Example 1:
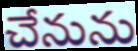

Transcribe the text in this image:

చేనును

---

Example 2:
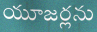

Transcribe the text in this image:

యూజర్లను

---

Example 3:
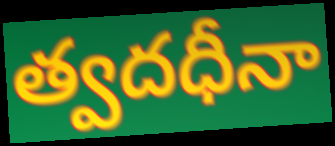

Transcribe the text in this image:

త్వదధీనా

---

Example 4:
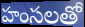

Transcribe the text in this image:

హంసలతో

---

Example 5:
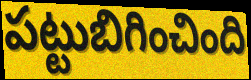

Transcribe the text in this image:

పట్టుబిగించింది